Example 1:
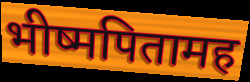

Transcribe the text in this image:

भीष्मपितामह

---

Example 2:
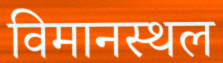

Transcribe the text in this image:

विमानस्थल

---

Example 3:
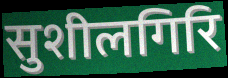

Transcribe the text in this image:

सुशीलगिरि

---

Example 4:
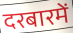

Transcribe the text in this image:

दरबारमें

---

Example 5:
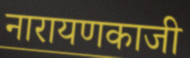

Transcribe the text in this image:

नारायणकाजी